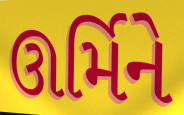
ઊર્મિને